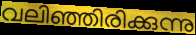
വലിഞ്ഞിരിക്കുന്നു